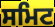
ਸਮਿਟ